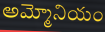
అమ్మోనియం